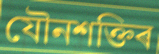
যৌনশক্তিৰ